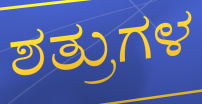
ಶತ್ರುಗಳ